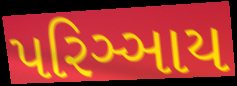
પરિઞ્ઞાય